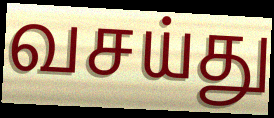
வசய்து